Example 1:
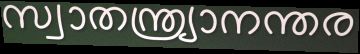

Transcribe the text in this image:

സ്വാതന്ത്ര്യാനന്തര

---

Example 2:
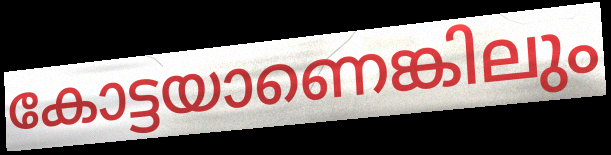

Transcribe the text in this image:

കോട്ടയാണെങ്കിലും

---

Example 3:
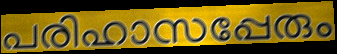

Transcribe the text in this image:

പരിഹാസപ്പേരും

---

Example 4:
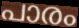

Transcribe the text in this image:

പാരം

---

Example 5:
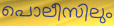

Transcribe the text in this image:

പൊലീസിലും